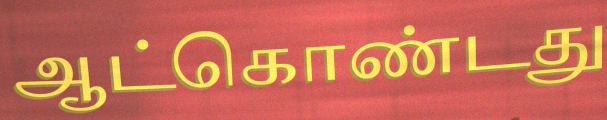
ஆட்கொண்டது